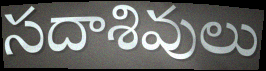
సదాశివులు